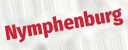
Nymphenburg